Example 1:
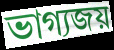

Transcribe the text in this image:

ভাগ্যজয়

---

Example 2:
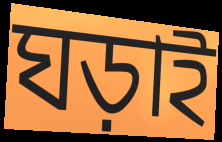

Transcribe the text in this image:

ঘড়াই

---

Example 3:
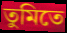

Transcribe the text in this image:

তুমিতে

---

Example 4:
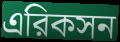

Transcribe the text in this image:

এরিকসন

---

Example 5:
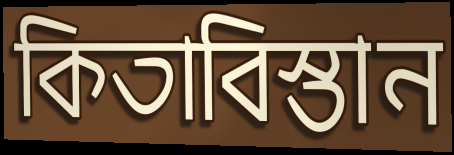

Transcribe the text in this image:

কিতাবিস্তান